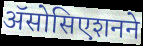
ॲसोसिएशनने